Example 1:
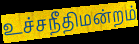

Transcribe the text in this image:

உச்சநீதிமன்றம்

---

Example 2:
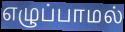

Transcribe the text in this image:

எழுப்பாமல்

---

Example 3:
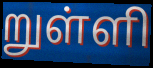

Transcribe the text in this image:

றுள்ளி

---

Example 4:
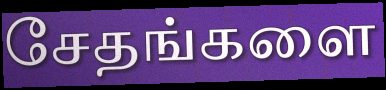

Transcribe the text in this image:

சேதங்களை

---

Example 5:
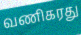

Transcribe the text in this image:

வணிகரது